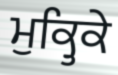
ਮੁਕ੍ਤਿਕੇ